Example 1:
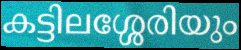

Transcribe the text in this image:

കട്ടിലശ്ശേരിയും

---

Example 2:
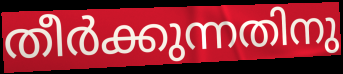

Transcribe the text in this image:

തീർക്കുന്നതിനു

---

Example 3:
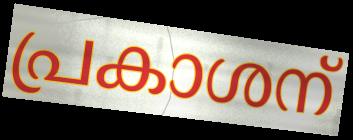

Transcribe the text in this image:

പ്രകാശന്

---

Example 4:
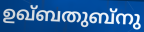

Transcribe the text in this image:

ഉഖ്ബതുബ്നു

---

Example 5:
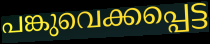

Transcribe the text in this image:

പങ്കുവെക്കപ്പെട്ട